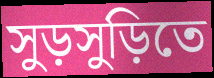
সুড়সুড়িতে